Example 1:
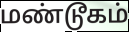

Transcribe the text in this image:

மண்டூகம்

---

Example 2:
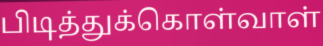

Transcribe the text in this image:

பிடித்துக்கொள்வாள்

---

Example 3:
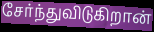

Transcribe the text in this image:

சேர்ந்துவிடுகிறான்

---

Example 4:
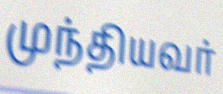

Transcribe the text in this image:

முந்தியவர்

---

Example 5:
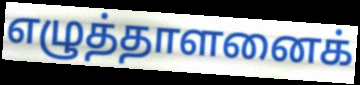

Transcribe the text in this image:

எழுத்தாளனைக்